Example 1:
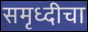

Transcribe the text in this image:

समृध्दीचा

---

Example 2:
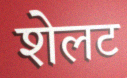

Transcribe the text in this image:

शेलट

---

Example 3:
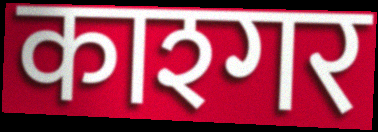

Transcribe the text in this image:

काश्गर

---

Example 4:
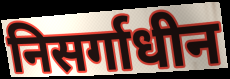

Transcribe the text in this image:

निसर्गाधीन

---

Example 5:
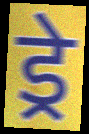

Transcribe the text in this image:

ड्रे